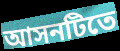
আসনটিতে